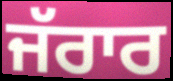
ਜੱਰਾਰ